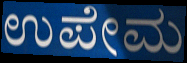
ಉಪೇಮ